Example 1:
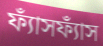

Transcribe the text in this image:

ফ্যাঁসফ্যাঁস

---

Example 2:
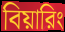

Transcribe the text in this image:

বিয়ারিং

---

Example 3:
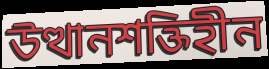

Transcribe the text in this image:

উত্থানশক্তিহীন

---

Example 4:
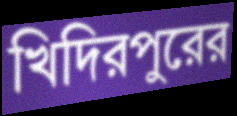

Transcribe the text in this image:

খিদিরপুরের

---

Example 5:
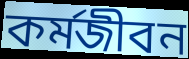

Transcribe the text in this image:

কর্মজীবন